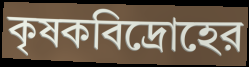
কৃষকবিদ্রোহের